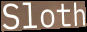
Sloth